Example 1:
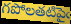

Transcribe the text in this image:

గపోలతటిపైఁ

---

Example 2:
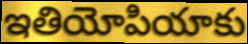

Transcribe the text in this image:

ఇతియోపియాకు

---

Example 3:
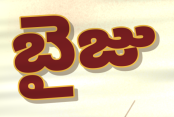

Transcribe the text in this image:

బైజు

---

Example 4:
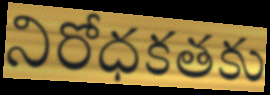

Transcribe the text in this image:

నిరోధకతకు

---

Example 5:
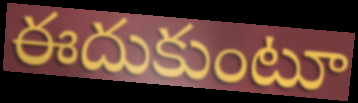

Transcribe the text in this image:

ఈదుకుంటూ